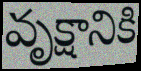
వృక్షానికి